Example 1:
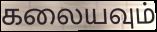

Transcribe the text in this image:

கலையவும்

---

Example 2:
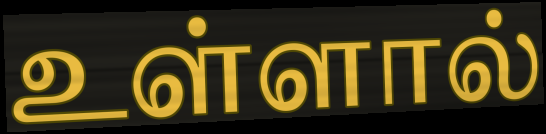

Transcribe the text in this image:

உள்ளால்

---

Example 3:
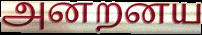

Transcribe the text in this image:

அனறனய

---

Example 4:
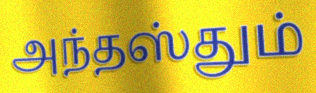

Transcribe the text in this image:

அந்தஸ்தும்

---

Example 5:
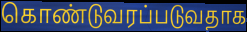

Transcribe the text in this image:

கொண்டுவரப்படுவதாக